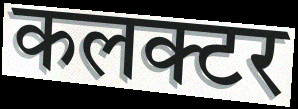
कलक्‍टर